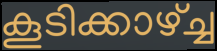
കൂടിക്കാഴ്ച്ച